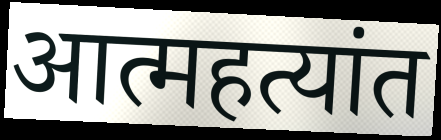
आत्महत्यांत